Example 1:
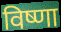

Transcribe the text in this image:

विष्णा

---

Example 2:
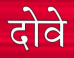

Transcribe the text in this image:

दोवे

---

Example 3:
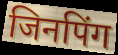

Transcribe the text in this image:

जिनपिंग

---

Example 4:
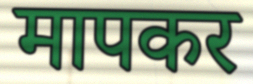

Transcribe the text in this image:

मापकर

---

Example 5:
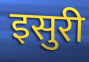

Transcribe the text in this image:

इसुरी